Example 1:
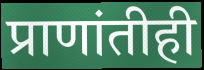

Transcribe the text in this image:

प्राणांतीही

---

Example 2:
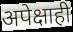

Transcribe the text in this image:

अपेक्षाही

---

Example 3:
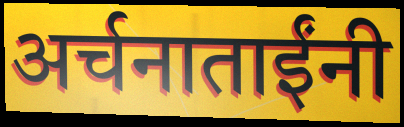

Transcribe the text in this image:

अर्चनाताईंनी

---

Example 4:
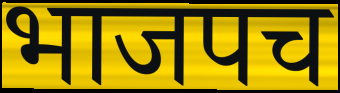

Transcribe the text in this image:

भाजपच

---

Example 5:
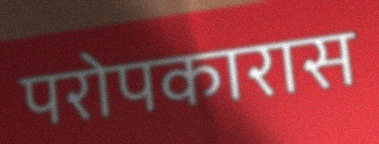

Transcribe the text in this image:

परोपकारास